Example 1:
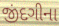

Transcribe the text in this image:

જીંદગીના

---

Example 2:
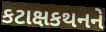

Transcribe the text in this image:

કટાક્ષકથનને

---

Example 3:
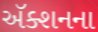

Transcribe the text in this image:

ઍક્શનના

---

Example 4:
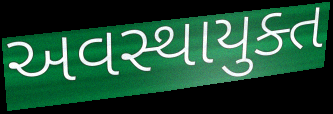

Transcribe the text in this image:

અવસ્થાયુક્ત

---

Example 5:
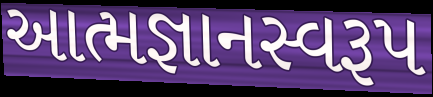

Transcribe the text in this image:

આત્મજ્ઞાનસ્વરૂપ